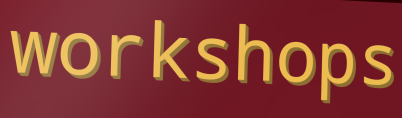
workshops